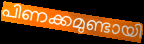
പിണക്കമുണ്ടായി